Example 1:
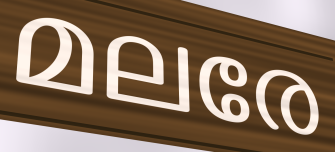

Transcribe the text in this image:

മലരേ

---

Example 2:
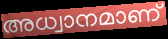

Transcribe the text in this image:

അധ്വാനമാണ്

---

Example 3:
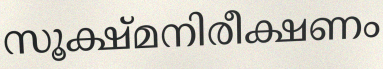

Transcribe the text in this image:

സൂക്ഷ്മനിരീക്ഷണം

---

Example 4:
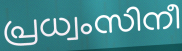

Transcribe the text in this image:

പ്രധ്വംസിനീ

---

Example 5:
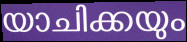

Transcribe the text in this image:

യാചിക്കയും